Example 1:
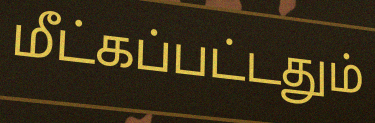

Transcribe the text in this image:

மீட்கப்பட்டதும்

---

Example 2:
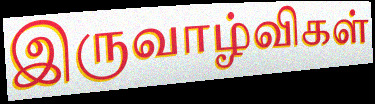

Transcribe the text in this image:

இருவாழ்விகள்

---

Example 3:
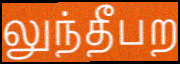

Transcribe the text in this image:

லுந்தீபற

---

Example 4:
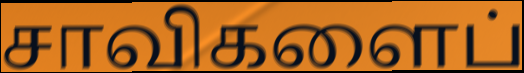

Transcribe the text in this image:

சாவிகளைப்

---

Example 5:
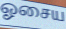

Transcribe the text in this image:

ஓசைய